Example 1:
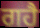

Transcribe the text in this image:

ਗਹੈ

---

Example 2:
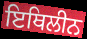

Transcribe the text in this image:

ਇਥਿਲੀਨ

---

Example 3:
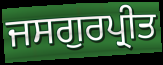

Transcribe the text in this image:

ਜਸਗੁਰਪ੍ਰੀਤ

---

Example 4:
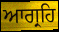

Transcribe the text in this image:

ਆਗ੍ਰਹਿ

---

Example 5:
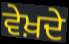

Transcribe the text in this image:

ਵੇਖ਼ਦੇ